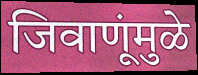
जिवाणूंमुळे